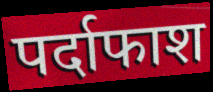
पर्दाफाश